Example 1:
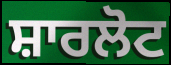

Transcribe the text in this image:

ਸ਼ਾਰਲੋਟ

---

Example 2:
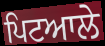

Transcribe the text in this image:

ਪਿਟਆਲੇ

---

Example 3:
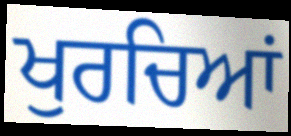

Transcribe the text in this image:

ਖੁਰਚਿਆਂ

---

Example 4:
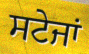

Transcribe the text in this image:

ਸਟੇਜਾਂ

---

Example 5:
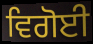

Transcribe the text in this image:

ਵਿਗੋਈ